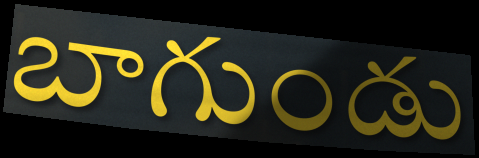
బాగుండు